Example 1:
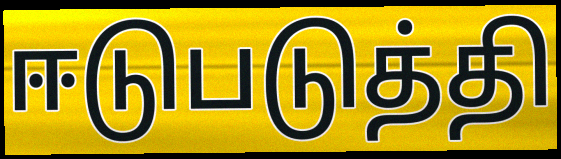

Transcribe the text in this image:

ஈடுபடுத்தி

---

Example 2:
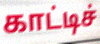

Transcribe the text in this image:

காட்டிச்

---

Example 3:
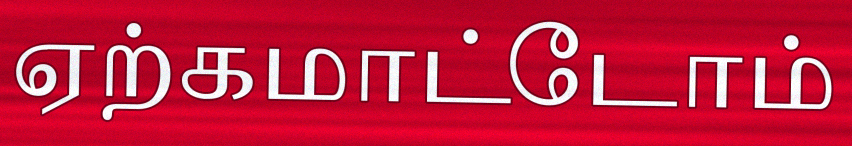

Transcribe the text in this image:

ஏற்கமாட்டோம்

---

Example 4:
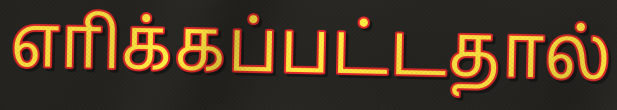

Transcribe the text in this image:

எரிக்கப்பட்டதால்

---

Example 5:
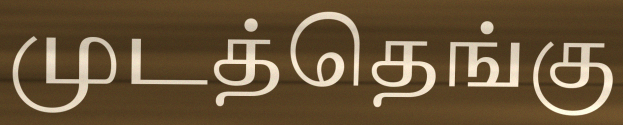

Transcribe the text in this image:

முடத்தெங்கு